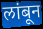
लांबून